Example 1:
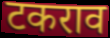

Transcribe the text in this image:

टकराव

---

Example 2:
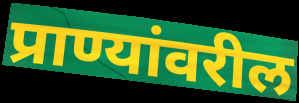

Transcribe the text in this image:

प्राण्यांवरील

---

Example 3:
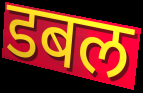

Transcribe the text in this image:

डबल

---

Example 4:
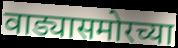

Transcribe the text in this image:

वाड्यासमोरच्या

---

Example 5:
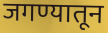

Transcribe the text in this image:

जगण्यातून